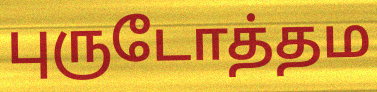
புருடோத்தம